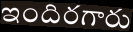
ఇందిరగారు